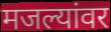
मजल्यांवर